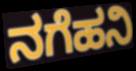
ನಗೆಹನಿ